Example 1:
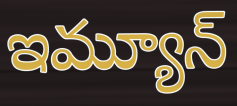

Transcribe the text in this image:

ఇమ్యూన్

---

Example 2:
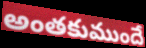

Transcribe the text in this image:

అంతకుముందే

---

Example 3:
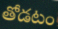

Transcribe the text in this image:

తోడటం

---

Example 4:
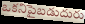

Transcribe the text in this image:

ఒకనిపైబడుదురు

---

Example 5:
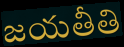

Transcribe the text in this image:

జయతీతి